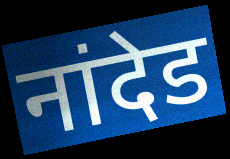
नांदेड